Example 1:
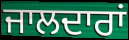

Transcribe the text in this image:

ਜਾਲਦਾਰਾਂ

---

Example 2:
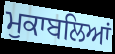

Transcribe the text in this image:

ਮੁਕਾਬਲਿਆਂ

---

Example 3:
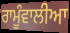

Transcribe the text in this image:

ਰਾਮੂੰਵਾਲੀਆ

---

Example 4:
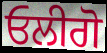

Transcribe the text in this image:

ਓਲੀਗੋ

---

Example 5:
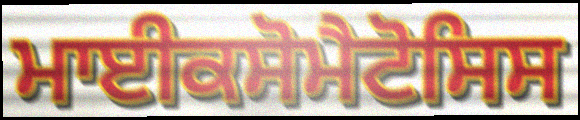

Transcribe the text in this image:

ਮਾਈਕਸੋਮੈਟੋਸਿਸ